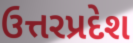
ઉત્તરપ્રદેશ